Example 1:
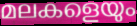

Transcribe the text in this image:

മലകളെയും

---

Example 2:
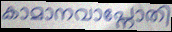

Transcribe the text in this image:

കാമാനവാപ്നോതി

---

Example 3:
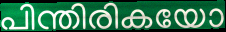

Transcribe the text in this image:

പിന്തിരികയോ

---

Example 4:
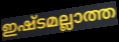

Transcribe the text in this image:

ഇഷ്ടമല്ലാത്ത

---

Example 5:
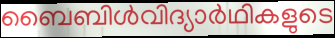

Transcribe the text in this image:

ബൈബിൾവിദ്യാർഥികളുടെ